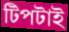
টিপটাই